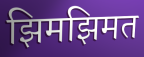
झिमझिमत